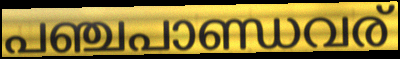
പഞ്ചപാണ്ഡവര്